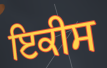
ਇਕੀਸ